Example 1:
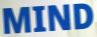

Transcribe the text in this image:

MIND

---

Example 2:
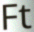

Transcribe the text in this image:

Ft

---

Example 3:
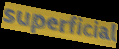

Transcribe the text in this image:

superficial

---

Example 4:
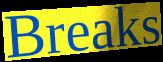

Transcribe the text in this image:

Breaks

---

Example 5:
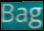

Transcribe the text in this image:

Bag